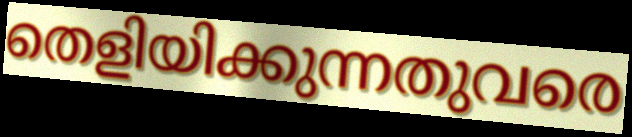
തെളിയിക്കുന്നതുവരെ